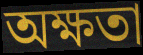
অক্ষতা